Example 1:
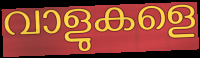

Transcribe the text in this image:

വാളുകളെ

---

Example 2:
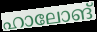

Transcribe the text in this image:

ഹാലോങ്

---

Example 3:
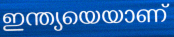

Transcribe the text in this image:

ഇന്ത്യയെയാണ്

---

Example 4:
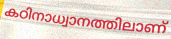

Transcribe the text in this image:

കഠിനാധ്വാനത്തിലാണ്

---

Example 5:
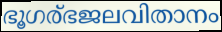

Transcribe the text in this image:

ഭൂഗര്ഭജലവിതാനം